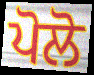
ਪੋਲੋ